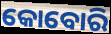
କୋବୋରି